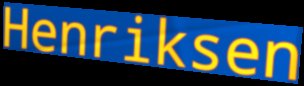
Henriksen